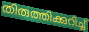
തിരുത്തിക്കുറിച്ച്